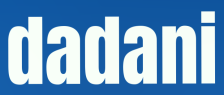
dadani